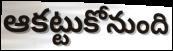
ఆకట్టుకోనుంది